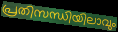
പ്രതിസന്ധിയിലാവും